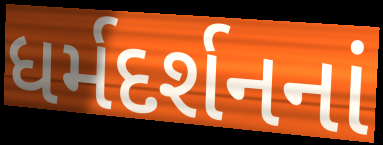
ધર્મદર્શનનાં